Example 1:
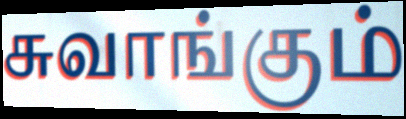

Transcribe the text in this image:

சுவாங்கும்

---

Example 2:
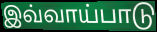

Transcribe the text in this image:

இவ்வாய்பாடு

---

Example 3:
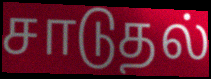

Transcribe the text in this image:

சாடுதல்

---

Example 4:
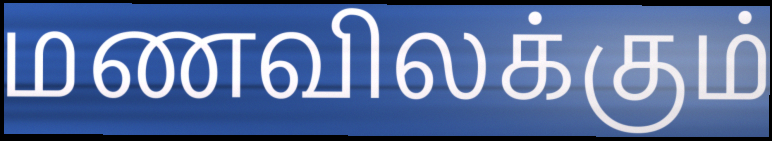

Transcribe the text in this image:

மணவிலக்கும்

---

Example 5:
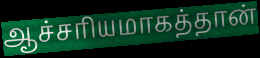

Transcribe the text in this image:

ஆச்சரியமாகத்தான்